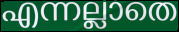
എന്നല്ലാതെ